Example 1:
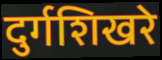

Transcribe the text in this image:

दुर्गशिखरे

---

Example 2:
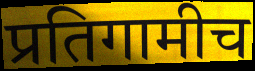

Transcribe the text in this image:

प्रतिगामीच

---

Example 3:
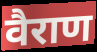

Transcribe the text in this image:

वैराण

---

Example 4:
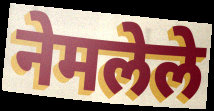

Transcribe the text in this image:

नेमलेले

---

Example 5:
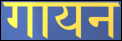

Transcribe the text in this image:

गायन